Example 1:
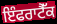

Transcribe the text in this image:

ਇੰਫਰਾਟੈੱਕ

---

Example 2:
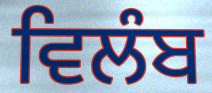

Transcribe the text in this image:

ਵਿਲੰਬ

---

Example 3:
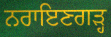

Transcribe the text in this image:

ਨਰਾਇਣਗੜ੍ਹ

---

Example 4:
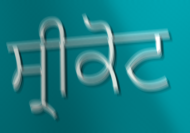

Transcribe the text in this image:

ਸ੍ਰੀਕੋਟ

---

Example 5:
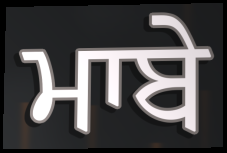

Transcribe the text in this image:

ਮਾਬੇ